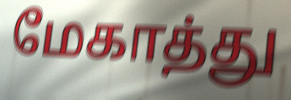
மேகாத்து